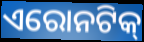
ଏରୋନଟିକ୍